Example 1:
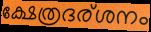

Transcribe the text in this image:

ക്ഷേത്രദര്ശനം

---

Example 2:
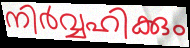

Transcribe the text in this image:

നിർവ്വഹിക്കും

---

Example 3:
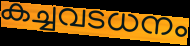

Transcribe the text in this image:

കച്ചവടധനം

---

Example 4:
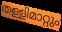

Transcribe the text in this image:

തള്ളിമാറ്റും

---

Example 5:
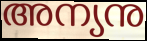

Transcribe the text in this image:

അന്യനു